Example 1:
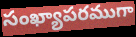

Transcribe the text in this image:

సంఖ్యాపరముగా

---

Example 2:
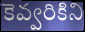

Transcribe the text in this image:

కెవ్వరికిని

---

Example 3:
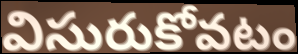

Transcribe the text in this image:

విసురుకోవటం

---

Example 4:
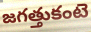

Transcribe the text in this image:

జగత్తుకంటె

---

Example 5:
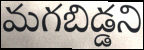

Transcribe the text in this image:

మగబిడ్డని